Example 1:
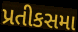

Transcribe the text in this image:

પ્રતીકસમા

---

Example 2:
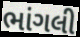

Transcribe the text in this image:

ભાંગલી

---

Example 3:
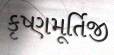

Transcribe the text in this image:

કૃષ્ણમૂર્તિજી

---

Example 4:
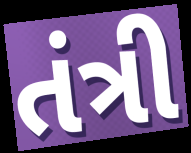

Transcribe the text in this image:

તંત્રી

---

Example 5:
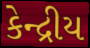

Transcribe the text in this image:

કેન્દ્રીય